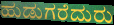
ಹುಡುಗರೆದುರು